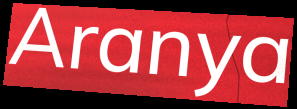
Aranya